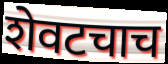
शेवटचाच